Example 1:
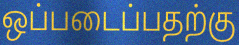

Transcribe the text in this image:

ஒப்படைப்பதற்கு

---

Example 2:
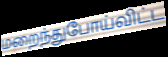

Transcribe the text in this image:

மறைந்துபோய்விட்ட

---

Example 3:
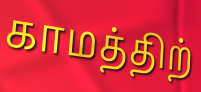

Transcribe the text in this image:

காமத்திற்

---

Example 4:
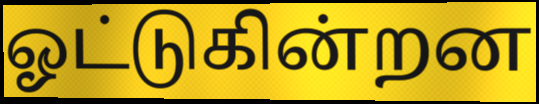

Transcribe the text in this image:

ஓட்டுகின்றன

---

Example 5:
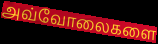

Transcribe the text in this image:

அவ்வோலைகளை